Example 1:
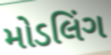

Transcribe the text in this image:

મોડલિંગ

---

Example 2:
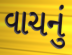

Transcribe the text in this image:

વાચનું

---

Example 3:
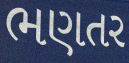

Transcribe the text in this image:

ભણતર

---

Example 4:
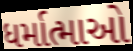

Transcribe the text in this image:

ધર્માત્માઓ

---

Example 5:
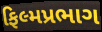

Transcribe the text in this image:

ફિલ્મપ્રભાગ